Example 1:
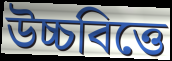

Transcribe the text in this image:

উচ্চবিত্তে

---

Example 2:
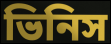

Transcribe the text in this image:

ভিনিস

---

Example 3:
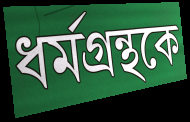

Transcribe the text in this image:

ধর্মগ্রন্থকে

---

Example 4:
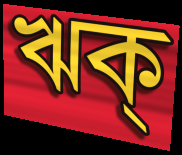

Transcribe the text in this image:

ঋক্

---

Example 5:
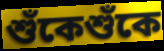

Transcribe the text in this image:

শুঁকেশুঁকে